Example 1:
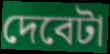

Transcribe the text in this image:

দেবেটা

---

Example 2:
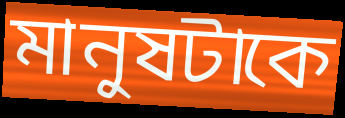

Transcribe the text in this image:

মানুষটাকে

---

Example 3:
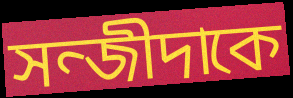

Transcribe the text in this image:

সন্জীদাকে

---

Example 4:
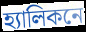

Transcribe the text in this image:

হ্যালিকনে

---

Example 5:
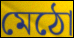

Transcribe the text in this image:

মেঠো